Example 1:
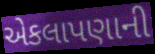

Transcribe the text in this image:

એકલાપણાની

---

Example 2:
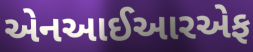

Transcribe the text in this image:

એનઆઈઆરએફ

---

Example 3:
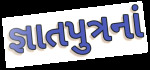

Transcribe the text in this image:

જ્ઞાતપુત્રનાં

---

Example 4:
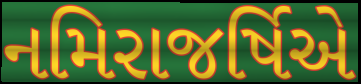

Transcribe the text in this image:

નમિરાજર્ષિએ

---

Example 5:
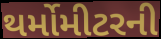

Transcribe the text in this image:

થર્મોમીટરની